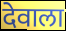
देवाला